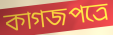
কাগজপত্রে